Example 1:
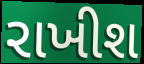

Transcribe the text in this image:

રાખીશ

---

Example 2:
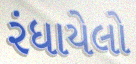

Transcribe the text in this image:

રંધાયેલો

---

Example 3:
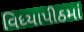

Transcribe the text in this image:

વિધ્યાપીઠમાં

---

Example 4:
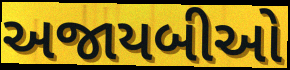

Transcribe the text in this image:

અજાયબીઓ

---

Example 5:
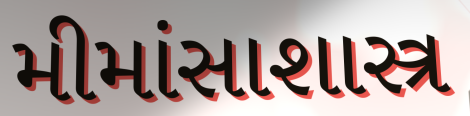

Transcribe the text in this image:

મીમાંસાશાસ્ત્ર